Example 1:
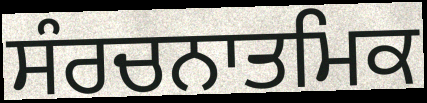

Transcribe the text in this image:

ਸੰਰਚਨਾਤਮਿਕ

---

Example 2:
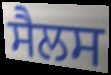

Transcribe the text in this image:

ਸੈਲਸ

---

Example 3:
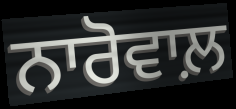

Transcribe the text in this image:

ਨਾਰੋਵਾਲ਼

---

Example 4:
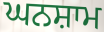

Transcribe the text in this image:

ਘਨਸ਼ਾਮ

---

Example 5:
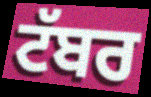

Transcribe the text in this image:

ਟੱਬਰ